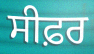
ਸੀਫ਼ਰ